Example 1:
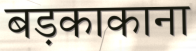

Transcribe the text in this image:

बड़काकाना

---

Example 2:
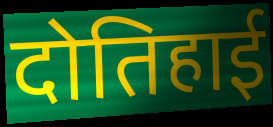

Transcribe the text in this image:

दोतिहाई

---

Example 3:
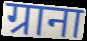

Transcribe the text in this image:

ग्राना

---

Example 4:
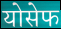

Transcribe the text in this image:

योसेफ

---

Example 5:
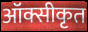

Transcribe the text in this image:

ऑक्सीकृत